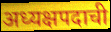
अध्यक्षपदाची